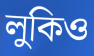
লুকিও